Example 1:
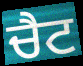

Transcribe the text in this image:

ਚੈਟ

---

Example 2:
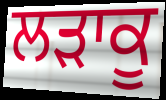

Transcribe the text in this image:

ਲੜਾਕੂ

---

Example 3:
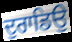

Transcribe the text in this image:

ਦੁਰਾਡਿਉ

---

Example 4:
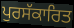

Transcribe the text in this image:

ਪੁਰਸੱਕਾਰਿਤ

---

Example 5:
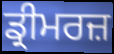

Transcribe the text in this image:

ਡ੍ਰੀਮਰਜ਼